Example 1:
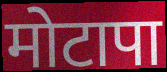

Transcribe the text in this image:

मोटापा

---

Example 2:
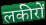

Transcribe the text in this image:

लकीरों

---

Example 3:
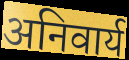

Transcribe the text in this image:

अनिवार्य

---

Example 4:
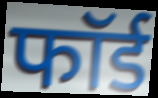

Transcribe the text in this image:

फॉर्ड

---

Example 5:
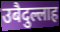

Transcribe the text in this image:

उबैदुल्लाह